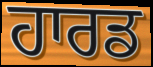
ਹਾਰਡ